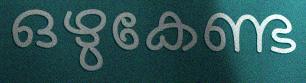
ഒഴുകേണ്ട